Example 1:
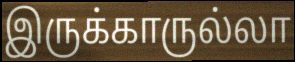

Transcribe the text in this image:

இருக்காருல்லா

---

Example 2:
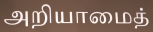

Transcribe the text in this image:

அறியாமைத்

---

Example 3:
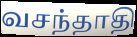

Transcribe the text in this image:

வசந்தாதி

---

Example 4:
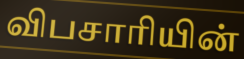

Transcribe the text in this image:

விபசாரியின்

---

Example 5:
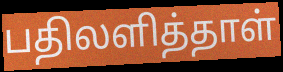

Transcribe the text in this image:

பதிலளித்தாள்